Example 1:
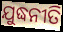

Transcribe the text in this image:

ଯୁଦ୍ଧନୀତି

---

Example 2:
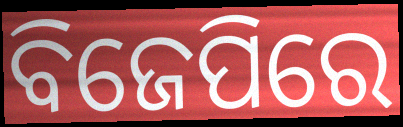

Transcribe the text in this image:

ବିଜେପିରେ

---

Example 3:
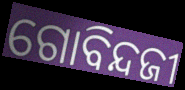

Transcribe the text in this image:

ଗୋବିନ୍ଦଜୀ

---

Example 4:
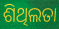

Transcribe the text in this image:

ଶିଥିଲତା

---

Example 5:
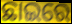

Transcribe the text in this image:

ଛାଇରେ